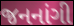
જનનાંગી